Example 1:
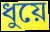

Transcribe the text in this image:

ধুয়ে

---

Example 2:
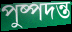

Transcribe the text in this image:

পুষ্পদন্ত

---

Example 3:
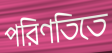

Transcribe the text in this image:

পরিণতিতে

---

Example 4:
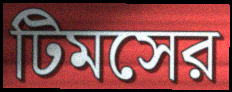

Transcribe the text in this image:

টিমসের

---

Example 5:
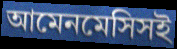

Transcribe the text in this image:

আমেনমেসিসই